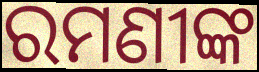
ରମଣୀଙ୍କ